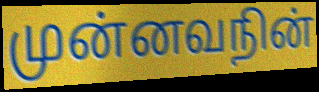
முன்னவநின்